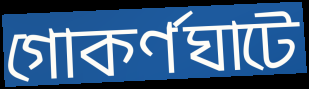
গোকর্ণঘাটে